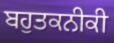
ਬਹੁਤਕਨੀਕੀ